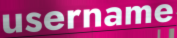
username